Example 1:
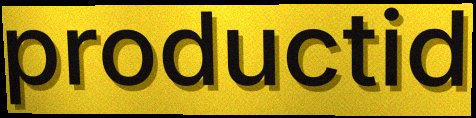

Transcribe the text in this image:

productid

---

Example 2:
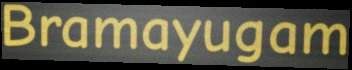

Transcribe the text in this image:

Bramayugam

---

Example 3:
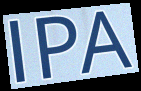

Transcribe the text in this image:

IPA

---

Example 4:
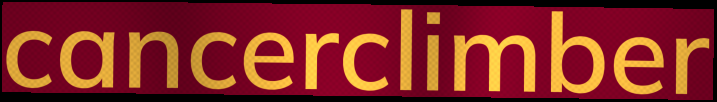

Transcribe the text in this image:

cancerclimber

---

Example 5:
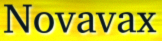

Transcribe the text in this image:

Novavax